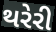
થરેરી